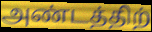
அண்டத்திற்